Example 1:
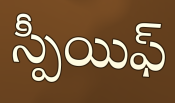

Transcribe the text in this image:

స్పీయిఫ్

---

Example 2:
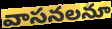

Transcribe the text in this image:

వాసనలనూ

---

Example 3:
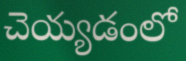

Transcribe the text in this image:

చెయ్యడంలో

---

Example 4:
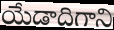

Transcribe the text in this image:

యేడాదిగాని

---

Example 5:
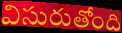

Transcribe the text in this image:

విసురుతోంది